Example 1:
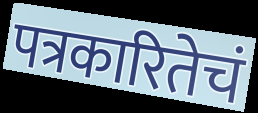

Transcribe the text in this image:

पत्रकारितेचं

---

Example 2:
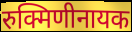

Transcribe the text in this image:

रुक्मिणीनायक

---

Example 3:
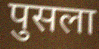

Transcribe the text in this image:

पुसला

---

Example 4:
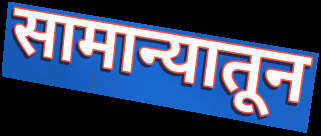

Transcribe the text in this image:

सामान्यातून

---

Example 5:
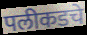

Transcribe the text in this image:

पलीकडचे